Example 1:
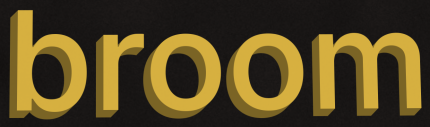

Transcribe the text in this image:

broom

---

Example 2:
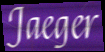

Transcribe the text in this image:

Jaeger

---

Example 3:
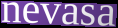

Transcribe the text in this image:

nevasa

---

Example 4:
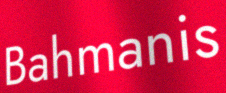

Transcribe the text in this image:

Bahmanis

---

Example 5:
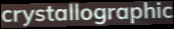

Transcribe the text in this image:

crystallographic